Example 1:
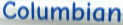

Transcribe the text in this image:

Columbian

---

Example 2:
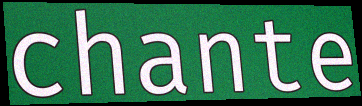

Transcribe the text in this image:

chante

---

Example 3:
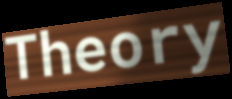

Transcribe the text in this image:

Theory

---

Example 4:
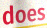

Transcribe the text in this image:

does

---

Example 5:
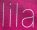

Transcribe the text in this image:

lila